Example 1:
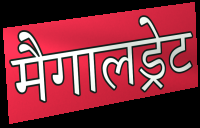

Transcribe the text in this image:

मैगालड्रेट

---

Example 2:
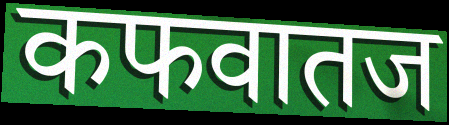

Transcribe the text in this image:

कफवातज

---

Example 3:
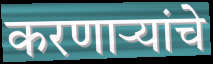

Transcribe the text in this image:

करणाऱ्यांचे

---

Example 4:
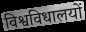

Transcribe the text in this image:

विश्वविधालयों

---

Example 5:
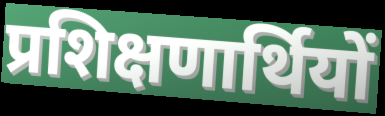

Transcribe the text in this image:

प्रशिक्षणार्थियों